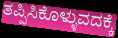
ತಪ್ಪಿಸಿಕೊಳ್ಳುವದಕ್ಕೆ